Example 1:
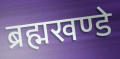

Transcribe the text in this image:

ब्रह्मखण्डे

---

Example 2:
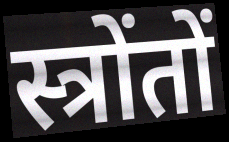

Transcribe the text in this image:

स्त्रोंतों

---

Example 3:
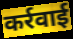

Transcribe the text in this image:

कर्रवाई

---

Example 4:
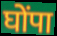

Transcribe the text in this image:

घोंपा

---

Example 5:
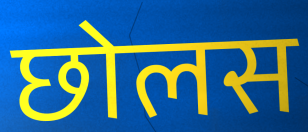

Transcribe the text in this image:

छोलस